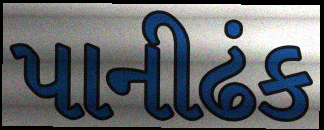
પાનીઢંક